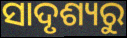
ସାଦୃଶ୍ୟରୁ